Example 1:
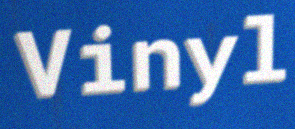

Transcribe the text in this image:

Vinyl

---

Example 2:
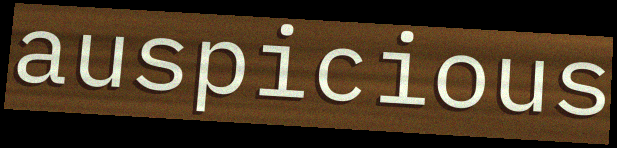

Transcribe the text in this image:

auspicious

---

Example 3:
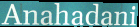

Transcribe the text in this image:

Anahadani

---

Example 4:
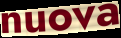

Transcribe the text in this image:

nuova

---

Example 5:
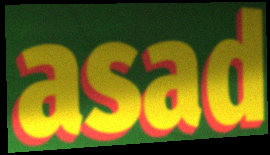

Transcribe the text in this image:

asad